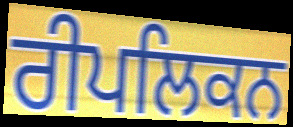
ਰੀਪਲਿਕਨ